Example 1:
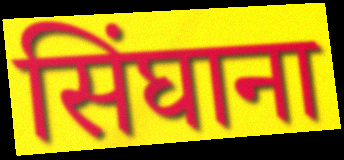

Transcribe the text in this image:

सिंघाना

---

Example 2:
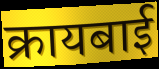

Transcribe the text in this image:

क्रायबाई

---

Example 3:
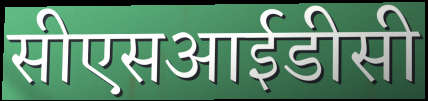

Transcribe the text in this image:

सीएसआईडीसी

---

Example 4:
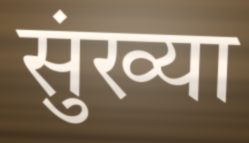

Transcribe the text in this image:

सुंख्या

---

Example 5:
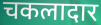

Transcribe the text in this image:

चकलादार